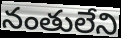
నంతులేని